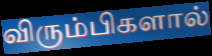
விரும்பிகளால்